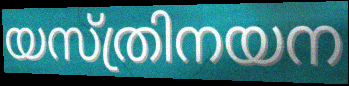
യസ്ത്രിനയന